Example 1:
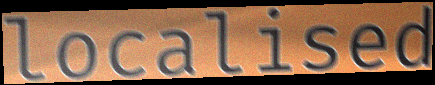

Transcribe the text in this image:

localised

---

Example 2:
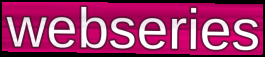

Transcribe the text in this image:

webseries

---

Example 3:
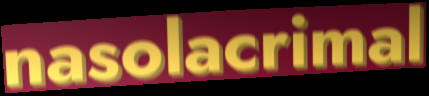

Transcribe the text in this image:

nasolacrimal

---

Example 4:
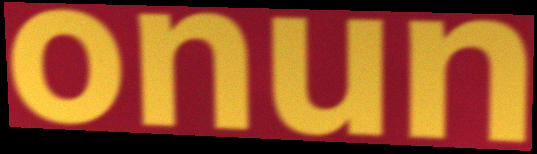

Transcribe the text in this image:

onun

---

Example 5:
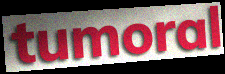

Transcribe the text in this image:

tumoral